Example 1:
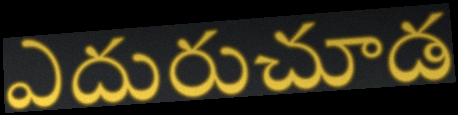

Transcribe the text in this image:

ఎదురుచూడ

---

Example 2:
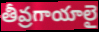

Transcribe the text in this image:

తీవ్రగాయాలై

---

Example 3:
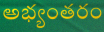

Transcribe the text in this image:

అభ్యంతరం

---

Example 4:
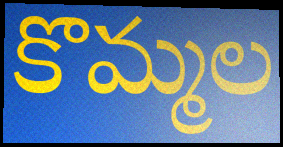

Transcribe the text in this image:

కొమ్మల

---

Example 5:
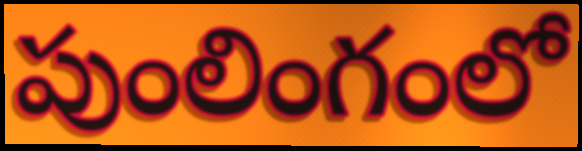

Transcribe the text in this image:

పుంలింగంలో